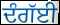
ਦੰਗੱਈ